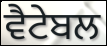
ਵੈਟੇਬਲ